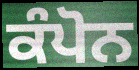
ਕੰਪੋਨ